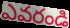
ఎవరండి